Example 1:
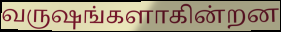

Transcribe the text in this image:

வருஷங்களாகின்றன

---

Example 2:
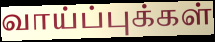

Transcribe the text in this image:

வாய்ப்புக்கள்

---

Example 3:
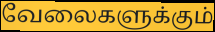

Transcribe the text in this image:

வேலைகளுக்கும்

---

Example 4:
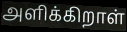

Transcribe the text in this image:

அளிக்கிறாள்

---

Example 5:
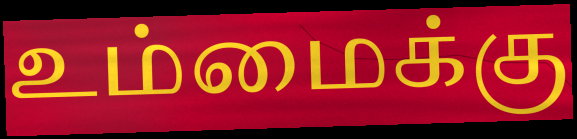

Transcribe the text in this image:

உம்மைக்கு